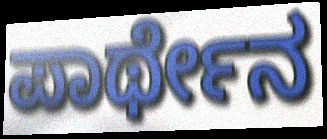
ಪಾರ್ಥೇನ